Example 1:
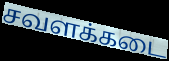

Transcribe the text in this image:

சவளக்கடை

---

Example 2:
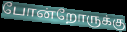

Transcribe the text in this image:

போன்றோருக்கு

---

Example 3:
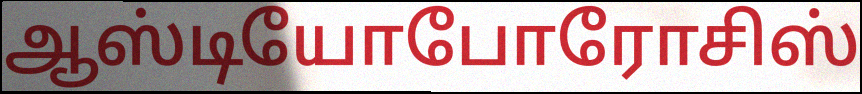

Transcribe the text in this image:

ஆஸ்டியோபோரோசிஸ்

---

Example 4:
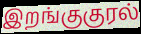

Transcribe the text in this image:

இறங்குகுரல்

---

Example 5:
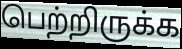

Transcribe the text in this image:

பெற்றிருக்க